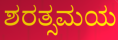
ಶರತ್ಸಮಯ